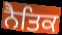
ਨੈਤਿਕ